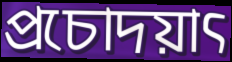
প্রচোদয়াৎ